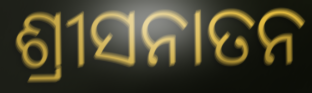
ଶ୍ରୀସନାତନ